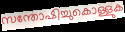
സന്തോഷിച്ചുകൊള്ളുക